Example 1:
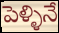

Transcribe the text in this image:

పెళ్ళినే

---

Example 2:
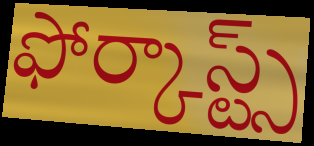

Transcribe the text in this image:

ఫోర్కాస్ట్స్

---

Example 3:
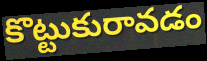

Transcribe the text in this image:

కొట్టుకురావడం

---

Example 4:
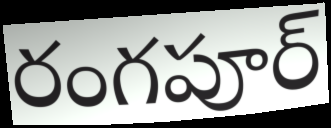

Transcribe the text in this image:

రంగపూర్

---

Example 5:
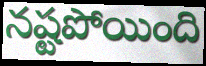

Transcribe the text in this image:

నష్టపోయింది